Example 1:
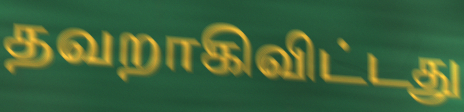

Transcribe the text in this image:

தவறாகிவிட்டது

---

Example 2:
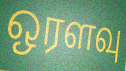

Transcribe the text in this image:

ஒரளவு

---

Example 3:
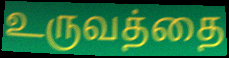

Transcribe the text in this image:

உருவத்தை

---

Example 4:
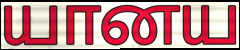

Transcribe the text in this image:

யானய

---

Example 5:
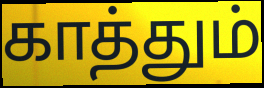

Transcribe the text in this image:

காத்தும்